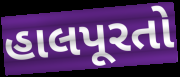
હાલપૂરતો